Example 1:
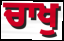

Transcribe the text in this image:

ਚਾਖੁ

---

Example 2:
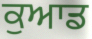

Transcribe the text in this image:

ਕੁਆਡ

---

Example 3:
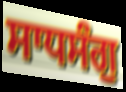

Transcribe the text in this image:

ਸਾਧਸੰਗੁ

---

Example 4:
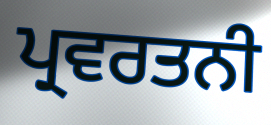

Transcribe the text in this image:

ਪ੍ਰਵਰਤਨੀ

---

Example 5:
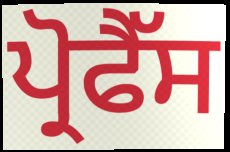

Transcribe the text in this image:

ਪ੍ਰੋਫੈੱਸ